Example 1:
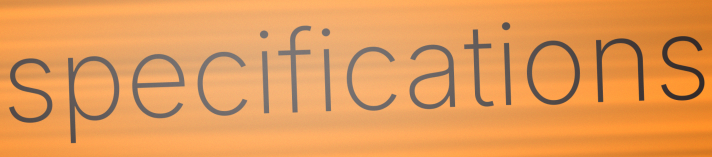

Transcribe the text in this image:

specifications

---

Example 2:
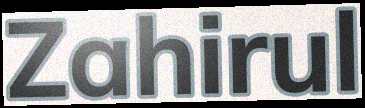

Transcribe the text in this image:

Zahirul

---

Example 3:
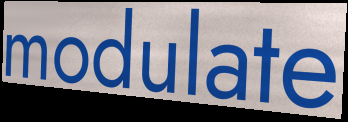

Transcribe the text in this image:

modulate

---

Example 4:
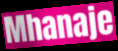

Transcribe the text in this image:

Mhanaje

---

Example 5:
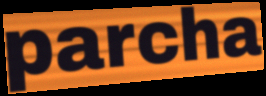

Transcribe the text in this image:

parcha